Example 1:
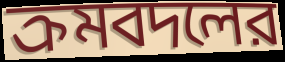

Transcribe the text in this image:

ক্রমবদলের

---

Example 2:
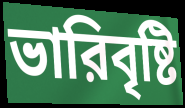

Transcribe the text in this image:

ভারিবৃষ্টি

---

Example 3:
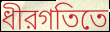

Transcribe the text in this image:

ধীরগতিতে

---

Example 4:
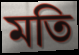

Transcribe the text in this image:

মতি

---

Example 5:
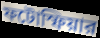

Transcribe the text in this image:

ফটোস্ফিয়ার